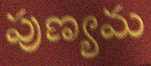
పుణ్యమ